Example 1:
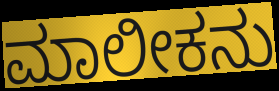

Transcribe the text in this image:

ಮಾಲೀಕನು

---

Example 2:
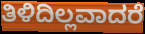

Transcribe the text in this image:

ತಿಳಿದಿಲ್ಲವಾದರೆ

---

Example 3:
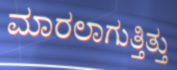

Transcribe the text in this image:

ಮಾರಲಾಗುತ್ತಿತ್ತು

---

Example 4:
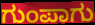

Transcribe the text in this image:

ಗುಂಪಾಗು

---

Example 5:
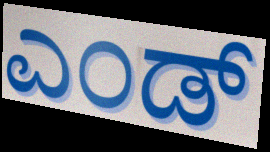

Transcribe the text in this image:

ಎಂಡ್